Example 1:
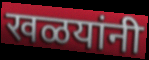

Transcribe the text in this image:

खळयांनी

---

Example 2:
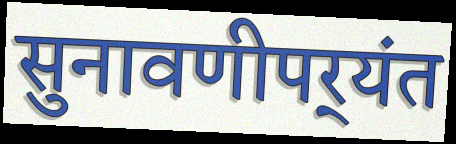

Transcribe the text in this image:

सुनावणीपर्यंत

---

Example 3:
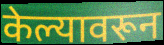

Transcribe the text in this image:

केल्यावरून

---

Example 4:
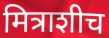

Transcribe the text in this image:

मित्राशीच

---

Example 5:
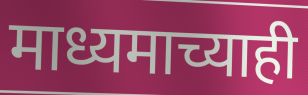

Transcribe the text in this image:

माध्यमाच्याही